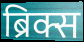
ब्रिक्स